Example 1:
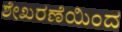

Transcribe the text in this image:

ಶೇಖರಣೆಯಿಂದ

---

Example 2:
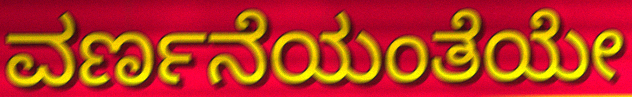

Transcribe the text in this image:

ವರ್ಣನೆಯಂತೆಯೇ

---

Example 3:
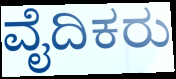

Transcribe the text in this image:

ವೈದಿಕರು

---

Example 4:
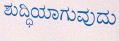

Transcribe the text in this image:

ಶುದ್ಧಿಯಾಗುವುದು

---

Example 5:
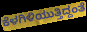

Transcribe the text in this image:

ಕೆಳಗಿಳಿಯುತ್ತಿದ್ದಂತೆ